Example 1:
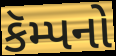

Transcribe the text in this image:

કૅમ્પનો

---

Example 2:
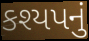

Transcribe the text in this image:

કશ્યપનું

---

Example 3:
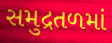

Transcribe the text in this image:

સમુદ્રતળમાં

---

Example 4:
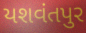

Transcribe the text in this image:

યશવંતપુર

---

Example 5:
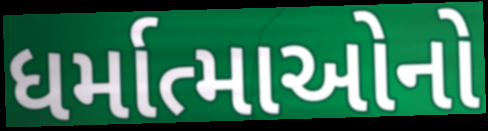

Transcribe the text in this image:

ધર્માત્માઓનો